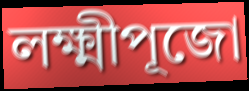
লক্ষ্মীপূজো